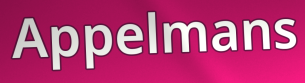
Appelmans